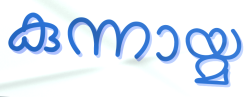
കുന്നായ്മ